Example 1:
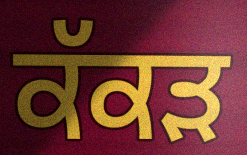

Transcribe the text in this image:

ਕੱਕਡ਼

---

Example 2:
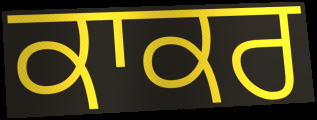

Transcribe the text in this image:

ਕਾਕਰ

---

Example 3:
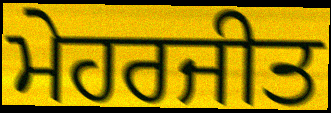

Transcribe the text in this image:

ਮੇਹਰਜੀਤ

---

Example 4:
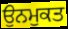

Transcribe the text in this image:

ਉਨਮੁਕਤ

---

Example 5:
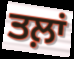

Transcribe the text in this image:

ਤਲ਼ਾਂ